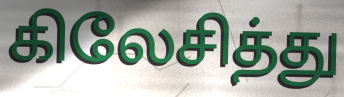
கிலேசித்து